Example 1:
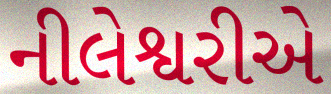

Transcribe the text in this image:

નીલેશ્વરીએ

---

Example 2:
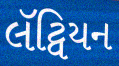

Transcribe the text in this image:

લૅટ્વિયન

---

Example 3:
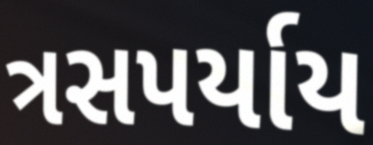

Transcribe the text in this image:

ત્રસપર્યાય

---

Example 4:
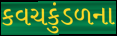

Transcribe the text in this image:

કવચકુંડળના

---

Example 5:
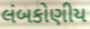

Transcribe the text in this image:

લંબકોણીય